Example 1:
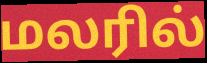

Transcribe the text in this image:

மலரில்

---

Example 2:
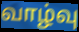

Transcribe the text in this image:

வாழ்வு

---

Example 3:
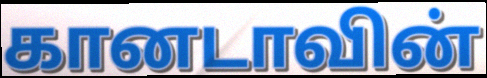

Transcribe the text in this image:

கானடாவின்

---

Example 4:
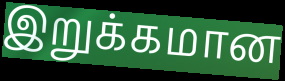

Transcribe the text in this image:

இறுக்கமான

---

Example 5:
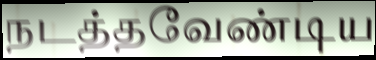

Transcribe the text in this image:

நடத்தவேண்டிய